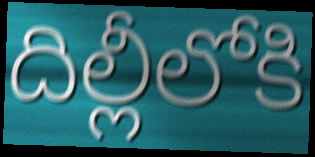
దిల్లీలోకి